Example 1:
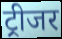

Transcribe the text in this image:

ट्रीजर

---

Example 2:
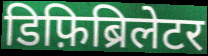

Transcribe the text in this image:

डिफ़िब्रिलेटर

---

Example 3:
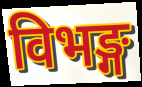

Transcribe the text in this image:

विभङ्ग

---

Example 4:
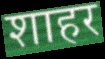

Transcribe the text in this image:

शाहर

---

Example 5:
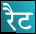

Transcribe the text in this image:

रैट